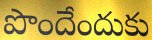
పొందేందుకు